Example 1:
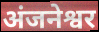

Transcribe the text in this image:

अंजनेश्वर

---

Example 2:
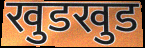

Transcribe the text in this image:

खुडखुड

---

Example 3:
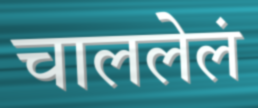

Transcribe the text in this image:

चाललेलं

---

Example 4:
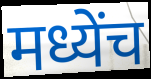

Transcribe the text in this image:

मध्येंच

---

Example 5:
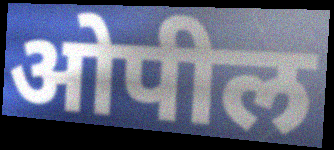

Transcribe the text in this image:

ओपील